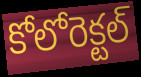
కోలోరెక్టల్